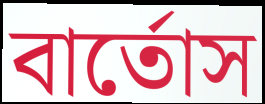
বার্তোস